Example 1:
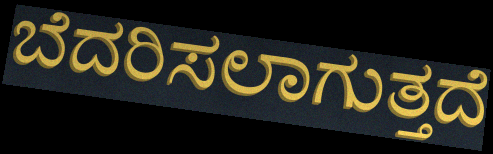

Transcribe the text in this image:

ಬೆದರಿಸಲಾಗುತ್ತದೆ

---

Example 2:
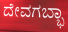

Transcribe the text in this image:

ದೇವಗಬ್ಭಾ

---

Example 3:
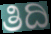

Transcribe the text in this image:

ತಿದಿ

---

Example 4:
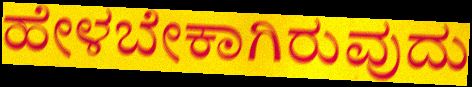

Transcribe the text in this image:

ಹೇಳಬೇಕಾಗಿರುವುದು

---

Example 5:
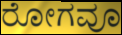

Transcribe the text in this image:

ರೋಗವೂ